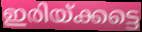
ഇരിയ്ക്കട്ടെ